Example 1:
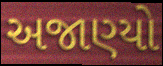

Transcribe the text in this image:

અજાણ્યો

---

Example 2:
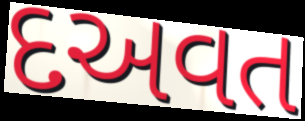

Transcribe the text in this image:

દઅવત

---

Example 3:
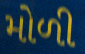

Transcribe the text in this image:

મોળી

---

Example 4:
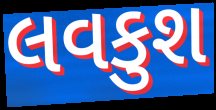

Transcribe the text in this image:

લવકુશ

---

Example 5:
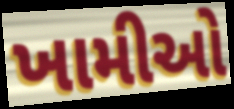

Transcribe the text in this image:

ખામીઓ